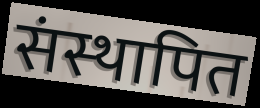
संस्थापित